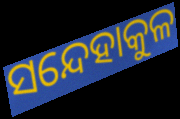
ସନ୍ଦେହାକୁଳ